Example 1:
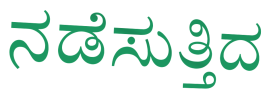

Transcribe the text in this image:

ನಡೆಸುತ್ತಿದ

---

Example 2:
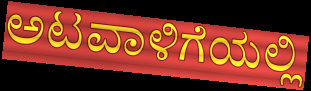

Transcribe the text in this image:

ಅಟವಾಳಿಗೆಯಲ್ಲಿ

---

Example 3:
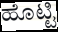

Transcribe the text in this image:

ಹೊಟ್ಟಿ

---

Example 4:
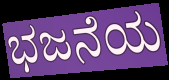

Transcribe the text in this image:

ಭಜನೆಯ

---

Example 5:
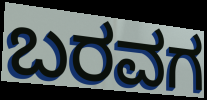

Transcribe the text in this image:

ಬರವಗ